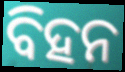
ବିହନ